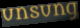
unsung